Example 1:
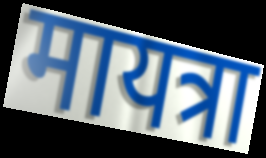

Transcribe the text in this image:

मायत्रा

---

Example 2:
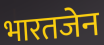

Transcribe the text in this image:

भारतजेन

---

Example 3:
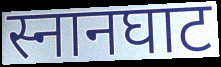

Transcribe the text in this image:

स्नानघाट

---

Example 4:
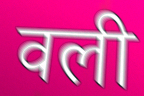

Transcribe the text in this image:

वली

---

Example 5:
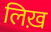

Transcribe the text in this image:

लिख़